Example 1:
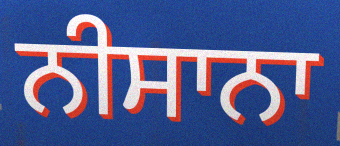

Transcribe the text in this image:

ਨੀਸਾਨਾ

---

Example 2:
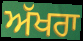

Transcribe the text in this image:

ਅੱਖਰਾ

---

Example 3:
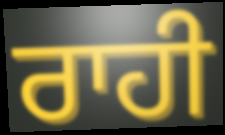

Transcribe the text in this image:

ਰਾਹੀ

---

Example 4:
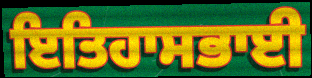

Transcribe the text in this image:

ਇਤਿਹਾਸਭਾਈ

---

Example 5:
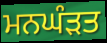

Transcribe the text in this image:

ਮਨਘੰੜਤ